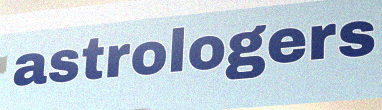
astrologers